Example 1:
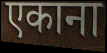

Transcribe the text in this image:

एकाना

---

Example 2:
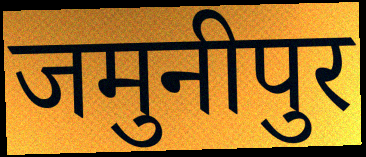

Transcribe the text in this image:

जमुनीपुर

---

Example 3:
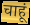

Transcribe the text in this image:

चाहूं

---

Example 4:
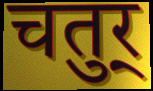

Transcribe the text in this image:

चतुर्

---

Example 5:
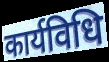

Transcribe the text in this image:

कार्यविधि